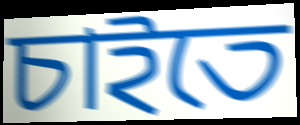
চাইতে